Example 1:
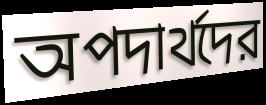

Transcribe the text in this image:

অপদার্থদের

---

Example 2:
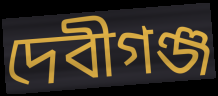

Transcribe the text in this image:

দেবীগঞ্জ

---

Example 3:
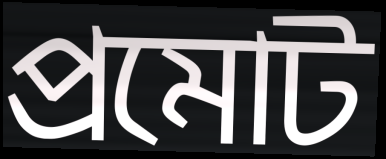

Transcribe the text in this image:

প্রমোট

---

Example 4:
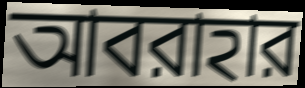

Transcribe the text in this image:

আবরাহার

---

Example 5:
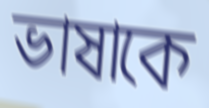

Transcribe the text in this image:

ভাষাকে